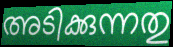
അടിക്കുന്നതു